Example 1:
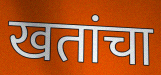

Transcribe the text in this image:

खतांचा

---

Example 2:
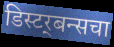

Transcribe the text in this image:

डिस्टर्बन्सचा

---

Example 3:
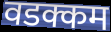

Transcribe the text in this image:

वडक्कम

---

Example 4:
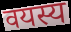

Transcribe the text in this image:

वयस्य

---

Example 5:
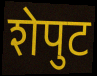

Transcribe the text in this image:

शेपुट